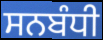
ਸਨਬੰਧੀ